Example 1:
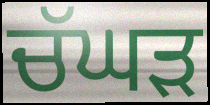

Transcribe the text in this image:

ਚੱਘੜ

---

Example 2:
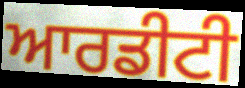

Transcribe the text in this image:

ਆਰਡੀਟੀ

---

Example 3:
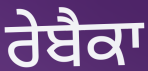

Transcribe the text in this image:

ਰੇਬੈਕਾ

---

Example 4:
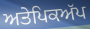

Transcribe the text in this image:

ਅਤੇਪਿਕਅੱਪ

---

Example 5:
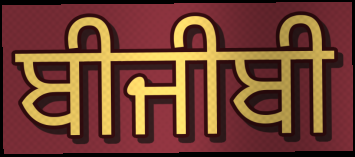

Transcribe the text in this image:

ਬੀਜੀਬੀ